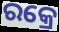
ରକ୍ରେ